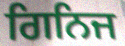
ਗਿਨਿਜ